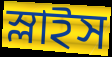
স্লাইস